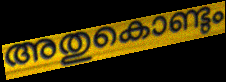
അതുകൊണ്ടും